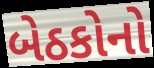
બેઠકોનો